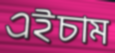
এইচাম